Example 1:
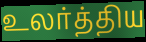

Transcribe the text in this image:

உலர்த்திய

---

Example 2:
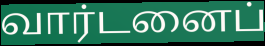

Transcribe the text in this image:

வார்டனைப்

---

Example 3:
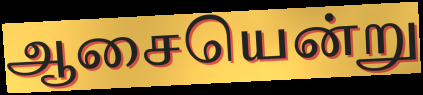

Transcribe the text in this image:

ஆசையென்று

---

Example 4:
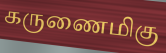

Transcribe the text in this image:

கருணைமிகு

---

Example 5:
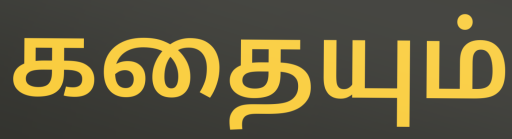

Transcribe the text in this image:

கதையும்